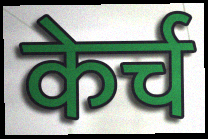
केर्च